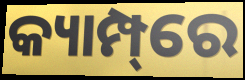
କ୍ୟାମ୍ପ୍‌ରେ